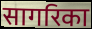
सागरिका